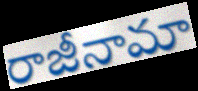
రాజీనామా